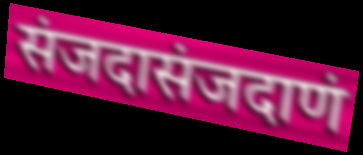
संजदासंजदाणं